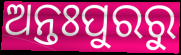
ଅନ୍ତଃପୁରରୁ